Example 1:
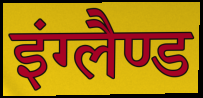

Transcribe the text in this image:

इंग्‍लैण्‍ड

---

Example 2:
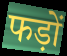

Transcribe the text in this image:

फड़ों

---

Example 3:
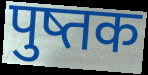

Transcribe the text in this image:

पुष्तक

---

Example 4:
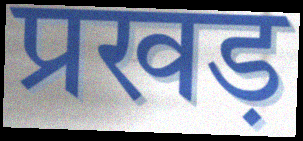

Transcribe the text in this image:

प्रखड़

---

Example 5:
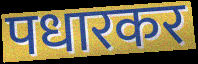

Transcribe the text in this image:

पधारकर